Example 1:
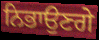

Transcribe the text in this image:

ਨਿਭਾਉਣਗੇ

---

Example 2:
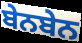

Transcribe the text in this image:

ਬੇਨਬੇਨ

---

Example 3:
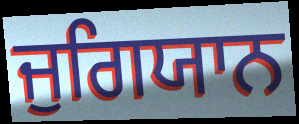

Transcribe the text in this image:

ਜੁਗਿਯਾਨ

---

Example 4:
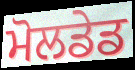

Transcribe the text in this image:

ਮੋਲਡੇਡ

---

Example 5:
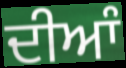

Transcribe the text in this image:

ਦੀਆੰ